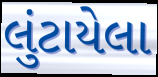
લુંટાયેલા